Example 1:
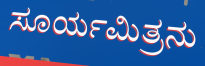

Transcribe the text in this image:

ಸೂರ್ಯಮಿತ್ರನು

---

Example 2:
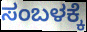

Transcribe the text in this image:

ಸಂಬಳಕ್ಕೆ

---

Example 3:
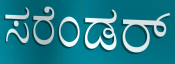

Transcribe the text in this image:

ಸರೆಂಡರ್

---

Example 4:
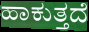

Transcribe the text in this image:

ಹಾಕುತ್ತದೆ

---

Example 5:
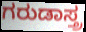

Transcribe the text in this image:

ಗರುಡಾಸ್ತ್ರ